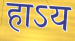
हाऽय